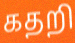
கதறி